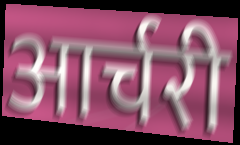
आर्चरी